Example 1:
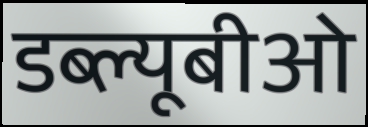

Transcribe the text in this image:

डब्ल्यूबीओ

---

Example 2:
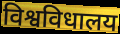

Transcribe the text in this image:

विश्वविधालय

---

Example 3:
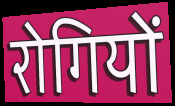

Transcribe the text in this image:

रोगियों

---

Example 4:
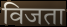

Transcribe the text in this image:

विजता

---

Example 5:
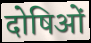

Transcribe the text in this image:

दोषिओं